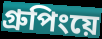
গ্রুপিংয়ে